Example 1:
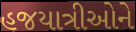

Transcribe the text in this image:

હજયાત્રીઓને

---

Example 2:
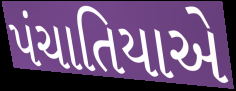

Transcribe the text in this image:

પંચાતિયાએ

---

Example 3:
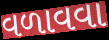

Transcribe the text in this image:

વળાવવા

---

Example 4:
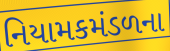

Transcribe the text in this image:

નિયામકમંડળના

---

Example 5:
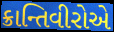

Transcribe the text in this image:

ક્રાન્તિવીરોએ